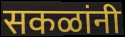
सकळांनी